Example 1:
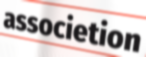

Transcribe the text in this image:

associetion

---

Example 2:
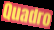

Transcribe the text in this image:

Quadro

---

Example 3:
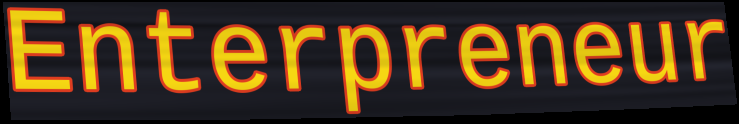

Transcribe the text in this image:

Enterpreneur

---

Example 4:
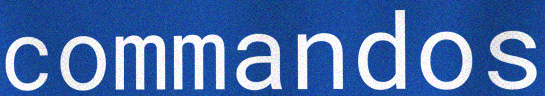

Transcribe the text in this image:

commandos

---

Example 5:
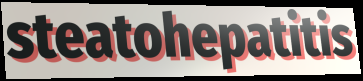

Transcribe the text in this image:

steatohepatitis